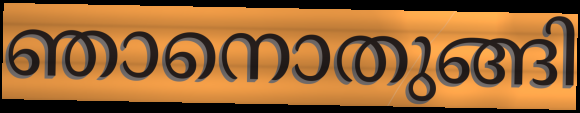
ഞാനൊതുങ്ങി